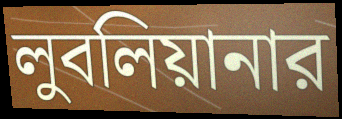
লুবলিয়ানার